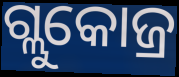
ଗ୍ଲୁକୋଜ୍ର